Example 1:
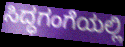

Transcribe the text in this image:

ಸಿದ್ಧಗಂಗೆಯಲ್ಲಿ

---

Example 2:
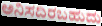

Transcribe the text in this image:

ಅನಿಸದಿರಬಹುದು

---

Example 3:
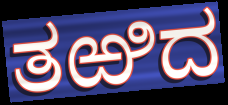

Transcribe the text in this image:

ತಱಿದ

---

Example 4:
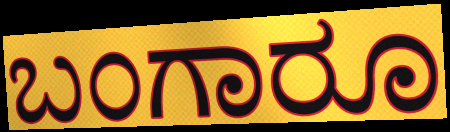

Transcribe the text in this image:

ಬಂಗಾರೂ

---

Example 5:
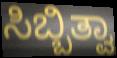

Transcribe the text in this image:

ಸಿಬ್ಬಿತ್ವಾ